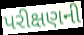
પરીક્ષણની